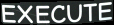
EXECUTE